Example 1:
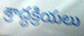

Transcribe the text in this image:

శ్రాద్ధక్రియలు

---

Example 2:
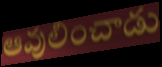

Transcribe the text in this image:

ఆవులించాడు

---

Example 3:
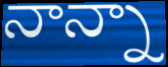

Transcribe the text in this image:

నాన్నా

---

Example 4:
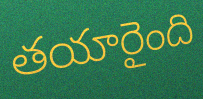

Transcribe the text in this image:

తయారైంది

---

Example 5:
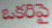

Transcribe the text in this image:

ఒకరిపై